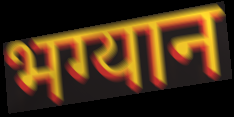
भग्यान